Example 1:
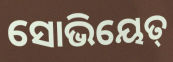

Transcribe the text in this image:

ସୋଭିୟେତ୍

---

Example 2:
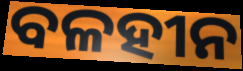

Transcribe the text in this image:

ବଳହୀନ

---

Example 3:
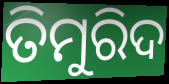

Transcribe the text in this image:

ତିମୁରିଦ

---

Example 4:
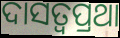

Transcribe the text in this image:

ଦାସତ୍ୱପ୍ରଥା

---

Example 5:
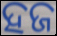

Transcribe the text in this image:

ହଜ